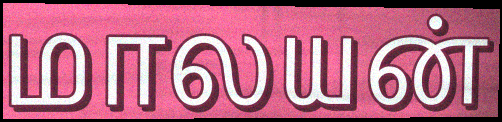
மாலயன்